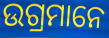
ଉଗ୍ରମାନେ